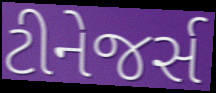
ટીનેજર્સ